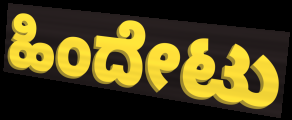
ಹಿಂದೇಟು